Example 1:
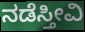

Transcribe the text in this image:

ನಡೆಸ್ತೀವಿ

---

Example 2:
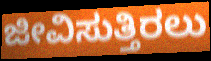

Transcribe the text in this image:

ಜೀವಿಸುತ್ತಿರಲು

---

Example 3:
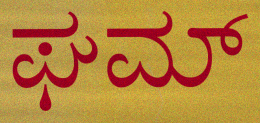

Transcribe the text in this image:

ಘಮ್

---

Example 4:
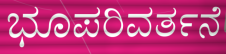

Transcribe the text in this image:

ಭೂಪರಿವರ್ತನೆ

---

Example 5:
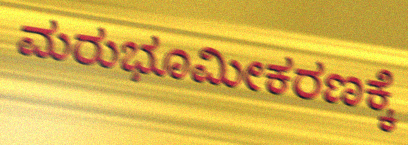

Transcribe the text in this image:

ಮರುಭೂಮೀಕರಣಕ್ಕೆ